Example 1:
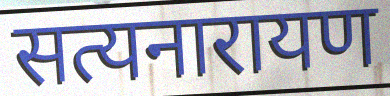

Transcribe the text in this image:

सत्यनारायण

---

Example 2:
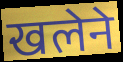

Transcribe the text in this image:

खलेने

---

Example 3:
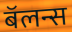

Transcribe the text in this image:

बॅलन्स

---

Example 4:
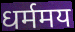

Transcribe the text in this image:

धर्ममय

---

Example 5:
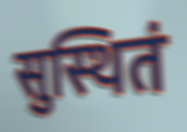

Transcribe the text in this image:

सुस्थितं